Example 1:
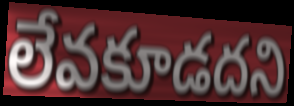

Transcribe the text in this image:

లేవకూడదని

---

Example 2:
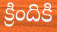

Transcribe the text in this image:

క్రిందికి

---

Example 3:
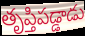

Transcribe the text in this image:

తృప్తిపడ్డాడు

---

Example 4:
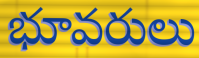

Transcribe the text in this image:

భూవరులు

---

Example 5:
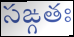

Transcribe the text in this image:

సఙ్గతః